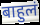
बाहुलं